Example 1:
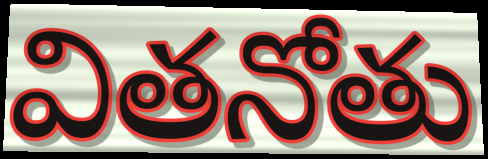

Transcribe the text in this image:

వితనోతు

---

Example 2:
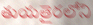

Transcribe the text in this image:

తుయతైరలోని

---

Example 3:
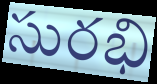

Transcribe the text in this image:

సురభి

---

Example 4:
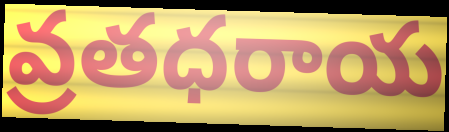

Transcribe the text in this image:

వ్రతధరాయ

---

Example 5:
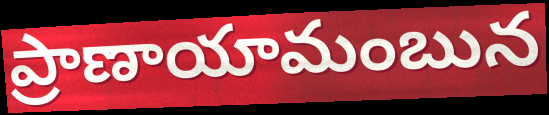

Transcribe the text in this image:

ప్రాణాయామంబున